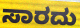
ಸಾರದು